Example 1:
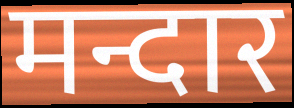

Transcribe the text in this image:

मन्दार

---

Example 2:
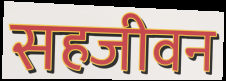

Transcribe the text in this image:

सहजीवन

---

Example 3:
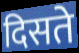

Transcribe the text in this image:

दिसते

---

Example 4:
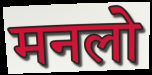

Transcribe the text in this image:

मनलो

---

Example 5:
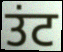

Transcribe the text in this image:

उंट